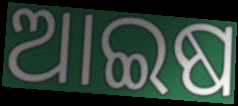
ଆଇଷ